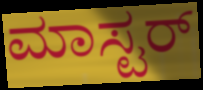
ಮಾಸ್ಟರ್